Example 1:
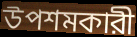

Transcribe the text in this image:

উপশমকারী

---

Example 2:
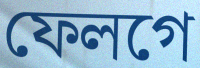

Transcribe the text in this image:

ফেলগে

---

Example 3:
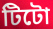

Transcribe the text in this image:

টিটো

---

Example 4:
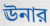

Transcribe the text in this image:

ঊনার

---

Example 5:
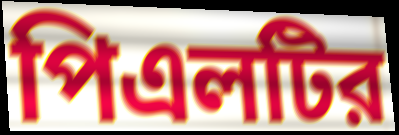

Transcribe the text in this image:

পিএলটির